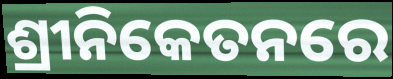
ଶ୍ରୀନିକେତନରେ